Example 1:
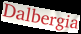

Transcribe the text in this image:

Dalbergia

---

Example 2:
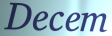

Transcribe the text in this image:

Decem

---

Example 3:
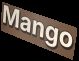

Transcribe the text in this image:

Mango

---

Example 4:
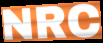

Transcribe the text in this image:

NRC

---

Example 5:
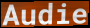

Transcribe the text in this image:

Audie